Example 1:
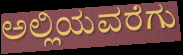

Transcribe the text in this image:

ಅಲ್ಲಿಯವರೆಗು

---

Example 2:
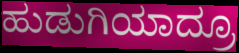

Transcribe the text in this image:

ಹುಡುಗಿಯಾದ್ರೂ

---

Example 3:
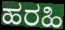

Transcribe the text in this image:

ಹರಹಿ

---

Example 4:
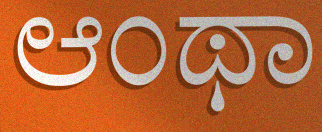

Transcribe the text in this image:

ಆಂಥಾ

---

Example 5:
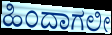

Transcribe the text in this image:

ಹಿಂದಾಗಲೀ